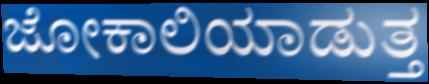
ಜೋಕಾಲಿಯಾಡುತ್ತ